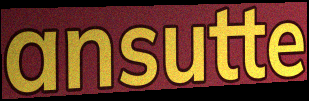
ansutte